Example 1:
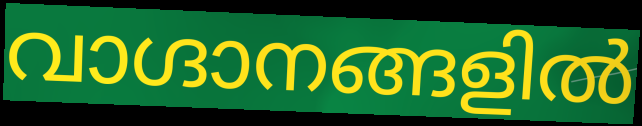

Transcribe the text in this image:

വാഗ്ദാനങ്ങളിൽ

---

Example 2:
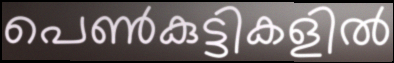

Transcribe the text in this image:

പെൺകുട്ടികളിൽ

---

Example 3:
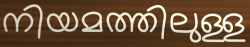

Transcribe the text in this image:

നിയമത്തിലുള്ള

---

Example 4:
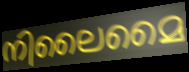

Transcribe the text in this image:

നിലൈമൈ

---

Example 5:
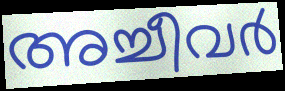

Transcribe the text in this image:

അച്ചീവർ